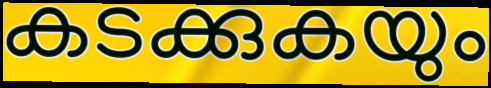
കടക്കുകയും